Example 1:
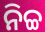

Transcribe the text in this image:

ନିଚ୍ଚ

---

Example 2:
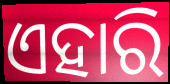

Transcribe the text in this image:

ଏହାରି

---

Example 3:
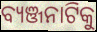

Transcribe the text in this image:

ବ୍ୟଞ୍ଜନାଟିକୁ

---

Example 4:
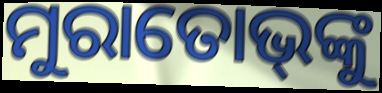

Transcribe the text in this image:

ମୁରାତୋଭ୍‌ଙ୍କୁ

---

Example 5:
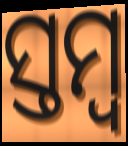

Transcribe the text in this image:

ସ୍ତମ୍ବ